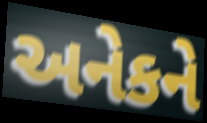
અનેકને